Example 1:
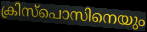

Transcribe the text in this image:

ക്രിസ്പൊസിനെയും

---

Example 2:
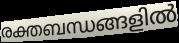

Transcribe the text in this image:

രക്തബന്ധങ്ങളിൽ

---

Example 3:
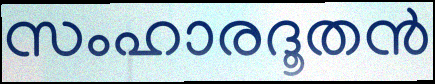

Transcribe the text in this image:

സംഹാരദൂതൻ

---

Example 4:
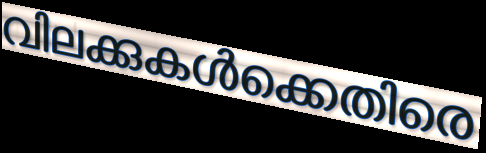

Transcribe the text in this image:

വിലക്കുകൾക്കെതിരെ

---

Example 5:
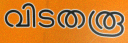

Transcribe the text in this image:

വിടതരൂ